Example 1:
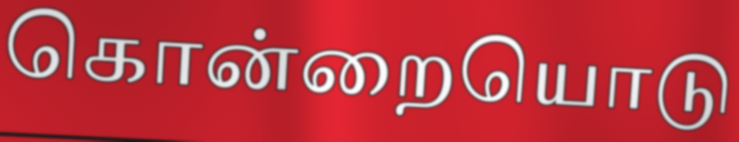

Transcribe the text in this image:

கொன்றையொடு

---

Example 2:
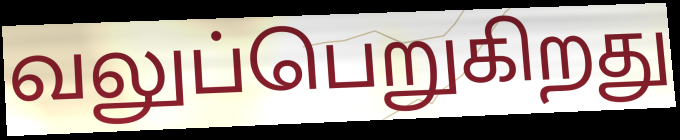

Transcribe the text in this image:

வலுப்பெறுகிறது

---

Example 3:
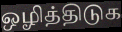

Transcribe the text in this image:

ஒழித்திடுக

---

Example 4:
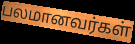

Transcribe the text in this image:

பலமானவர்கள்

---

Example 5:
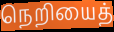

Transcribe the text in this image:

நெறியைத்